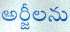
అర్జీలను